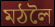
মঠলৈ